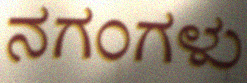
ನಗಂಗಳು